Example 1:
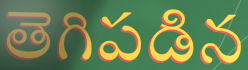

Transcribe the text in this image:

తెగిపడిన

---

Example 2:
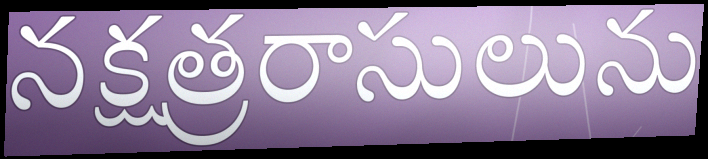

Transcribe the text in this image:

నక్షత్రరాసులును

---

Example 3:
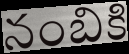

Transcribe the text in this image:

నంబికి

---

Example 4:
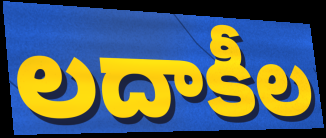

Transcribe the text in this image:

లదాకీల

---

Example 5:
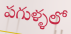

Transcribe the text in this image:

పగుళ్ళలో